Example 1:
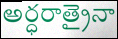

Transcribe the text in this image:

అర్ధరాత్రైనా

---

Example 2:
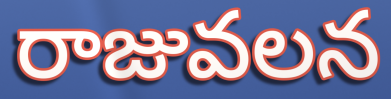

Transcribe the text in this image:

రాజువలన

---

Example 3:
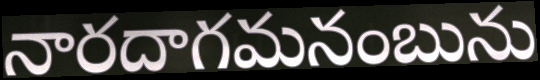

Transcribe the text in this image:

నారదాగమనంబును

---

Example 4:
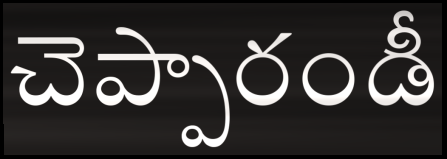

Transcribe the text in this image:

చెప్పారండీ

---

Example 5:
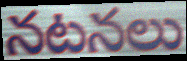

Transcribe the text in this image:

నటనలు